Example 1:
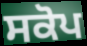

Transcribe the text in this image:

ਸਕੋਪ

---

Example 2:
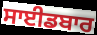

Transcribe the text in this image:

ਸਾਈਡਬਾਰ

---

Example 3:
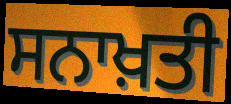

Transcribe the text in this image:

ਸਨਾਖ਼ਤੀ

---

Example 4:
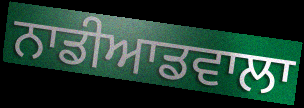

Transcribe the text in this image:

ਨਾਡੀਆਡਵਾਲਾ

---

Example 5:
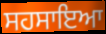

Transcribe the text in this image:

ਸਹਸਾਇਆ